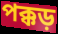
পক্কড়